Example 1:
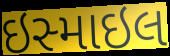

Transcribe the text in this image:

ઇસ્માઇલ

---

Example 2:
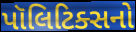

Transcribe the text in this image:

પૉલિટિક્સનો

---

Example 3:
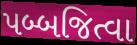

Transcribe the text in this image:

પબ્બજિત્વા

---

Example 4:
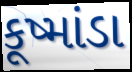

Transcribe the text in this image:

કૂષ્માંડા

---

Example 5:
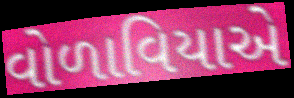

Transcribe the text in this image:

વોળાવિયાએ